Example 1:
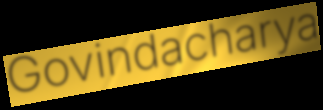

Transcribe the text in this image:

Govindacharya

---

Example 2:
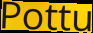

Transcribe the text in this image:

Pottu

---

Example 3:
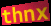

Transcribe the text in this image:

thnx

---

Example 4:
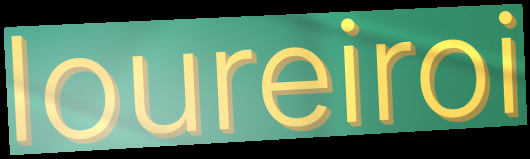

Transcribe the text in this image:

loureiroi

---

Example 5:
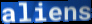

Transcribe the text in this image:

aliens